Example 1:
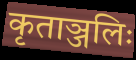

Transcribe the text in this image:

कृताञ्जलिः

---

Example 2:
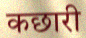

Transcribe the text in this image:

कछारी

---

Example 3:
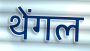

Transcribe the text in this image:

थेंगल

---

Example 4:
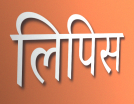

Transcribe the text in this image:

लिपिस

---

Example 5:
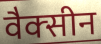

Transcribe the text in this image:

वैक्‍सीन